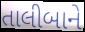
તાલીબાને